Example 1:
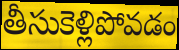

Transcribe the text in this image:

తీసుకెళ్లిపోవడం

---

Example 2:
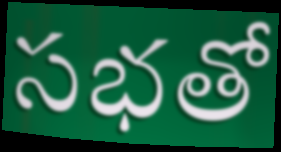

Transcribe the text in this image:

సభతో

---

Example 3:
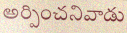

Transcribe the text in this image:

అర్పించనివాడు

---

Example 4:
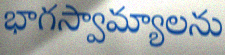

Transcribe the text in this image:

భాగస్వామ్యాలను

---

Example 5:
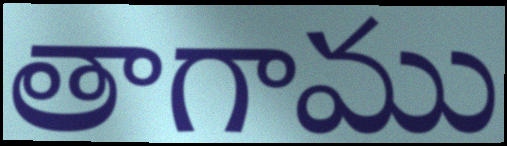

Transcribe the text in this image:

తాగాము